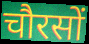
चौरसों